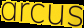
arcus